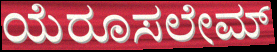
ಯೆರೂಸಲೇಮ್